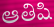
ఆతిషి